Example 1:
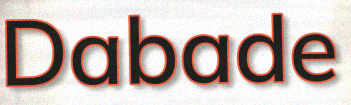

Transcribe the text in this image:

Dabade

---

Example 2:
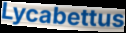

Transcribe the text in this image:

Lycabettus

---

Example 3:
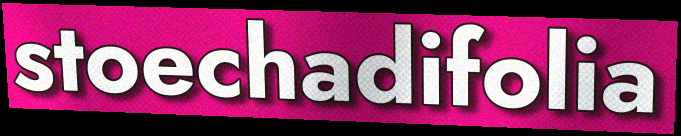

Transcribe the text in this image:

stoechadifolia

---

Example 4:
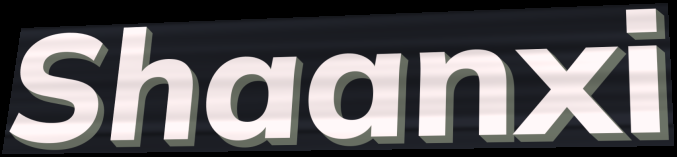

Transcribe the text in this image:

Shaanxi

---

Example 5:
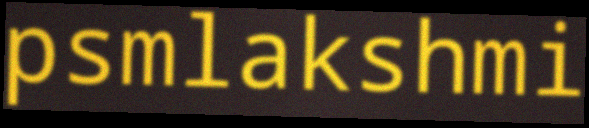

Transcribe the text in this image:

psmlakshmi